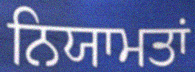
ਨਿਯਾਮਤਾਂ